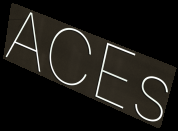
ACEs